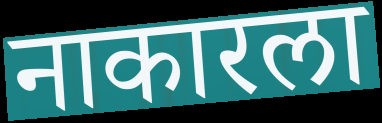
नाकारला